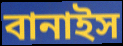
বানাইস